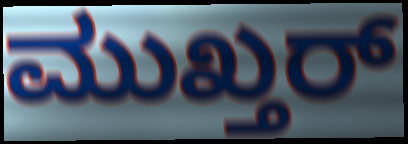
ಮುಖ್ತರ್